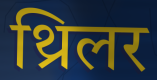
थ्रिलर